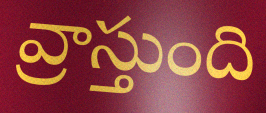
వ్రాస్తుంది